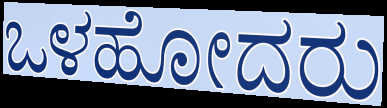
ಒಳಹೋದರು